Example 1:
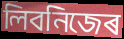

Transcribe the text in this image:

লিবনিজেৰ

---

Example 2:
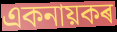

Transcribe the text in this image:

একনায়কৰ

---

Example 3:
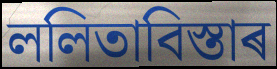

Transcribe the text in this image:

ললিতাবিস্তাৰ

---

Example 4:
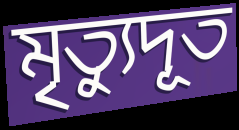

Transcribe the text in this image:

মৃত্যুদূত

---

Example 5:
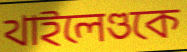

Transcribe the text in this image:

থাইলেণ্ডকে